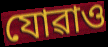
যোৱাও